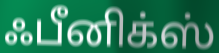
ஃபீனிக்ஸ்